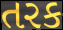
તરક